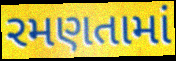
રમણતામાં